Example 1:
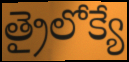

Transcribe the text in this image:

త్రైలోక్యే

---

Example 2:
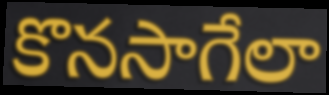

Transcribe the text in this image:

కొనసాగేలా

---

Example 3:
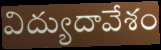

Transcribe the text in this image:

విద్యుదావేశం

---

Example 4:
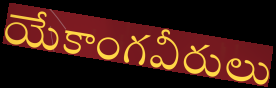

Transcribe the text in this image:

యేకాంగవీరులు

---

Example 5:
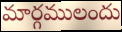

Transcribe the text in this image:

మార్గములందు